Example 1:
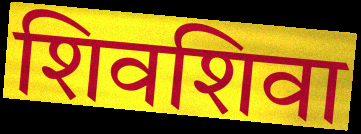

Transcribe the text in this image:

शिवशिवा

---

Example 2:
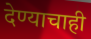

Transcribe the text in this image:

देण्याचाही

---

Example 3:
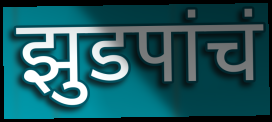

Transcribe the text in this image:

झुडपांचं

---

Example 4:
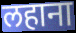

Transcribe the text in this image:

लहाना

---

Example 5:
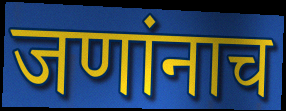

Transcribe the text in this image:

जणांनाच